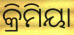
କ୍ରିମିୟା